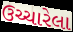
ઉચ્ચારેલા